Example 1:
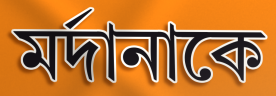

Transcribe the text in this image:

মর্দানাকে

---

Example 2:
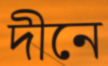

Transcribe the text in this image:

দীনে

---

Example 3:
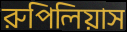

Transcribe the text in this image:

রুপিলিয়াস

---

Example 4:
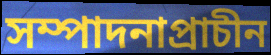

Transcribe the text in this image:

সম্পাদনাপ্রাচীন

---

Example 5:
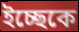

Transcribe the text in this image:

ইচ্ছেকে